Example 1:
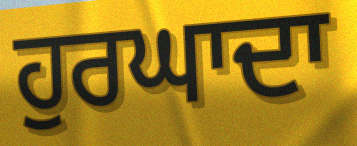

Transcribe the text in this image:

ਹੁਰਘਾਦਾ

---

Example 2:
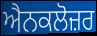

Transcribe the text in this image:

ਐਨਕਲੋਜ਼ਰ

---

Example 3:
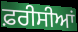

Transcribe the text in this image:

ਫ਼ਰੀਸੀਆਂ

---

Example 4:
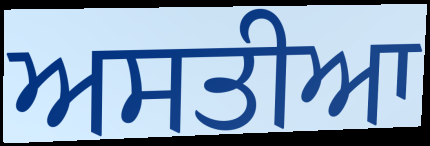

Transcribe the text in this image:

ਅਸਤੀਆ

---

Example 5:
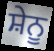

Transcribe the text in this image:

ਸ਼ੇਨੂ